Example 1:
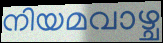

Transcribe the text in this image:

നിയമവാഴ്ച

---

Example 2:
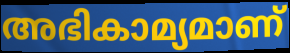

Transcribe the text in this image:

അഭികാമ്യമാണ്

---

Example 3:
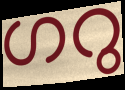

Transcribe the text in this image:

ഗറു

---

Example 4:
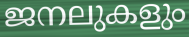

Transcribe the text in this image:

ജനലുകളും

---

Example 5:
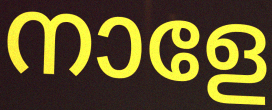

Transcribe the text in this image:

നാളേ